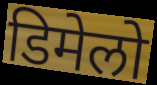
डिमेलो